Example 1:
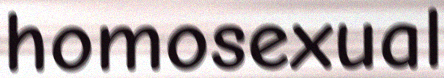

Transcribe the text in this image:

homosexual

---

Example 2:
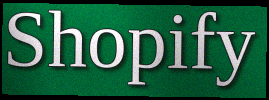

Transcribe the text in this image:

Shopify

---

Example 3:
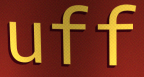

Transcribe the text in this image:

uff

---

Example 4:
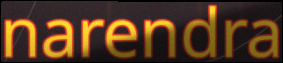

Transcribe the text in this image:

narendra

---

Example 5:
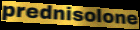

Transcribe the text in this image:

prednisolone